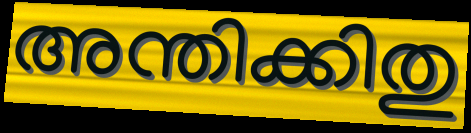
അന്തിക്കിതു